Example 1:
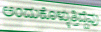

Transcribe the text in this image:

ಅಂದುಕೊಳ್ಳುತ್ತಿದ್ದೆವು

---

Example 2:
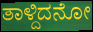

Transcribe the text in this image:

ತಾಳ್ದಿದನೋ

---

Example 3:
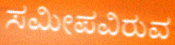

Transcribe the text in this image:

ಸಮೀಪವಿರುವ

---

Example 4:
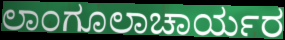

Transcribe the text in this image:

ಲಾಂಗೂಲಾಚಾರ್ಯರ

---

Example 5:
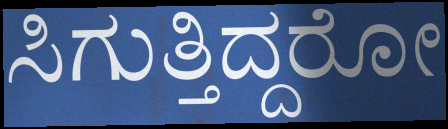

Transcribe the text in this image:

ಸಿಗುತ್ತಿದ್ದರೋ